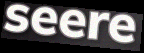
seere